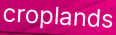
croplands